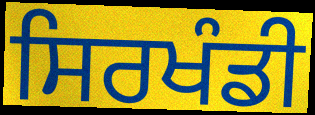
ਸਿਰਖੰਡੀ